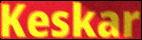
Keskar